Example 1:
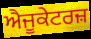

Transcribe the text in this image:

ਐਜੂਕੇਟਰਜ਼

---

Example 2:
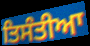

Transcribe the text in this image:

ਤਿਸੰਤੀਆ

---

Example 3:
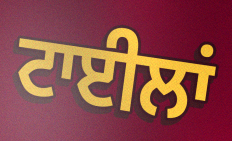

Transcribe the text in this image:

ਟਾਈਲਾਂ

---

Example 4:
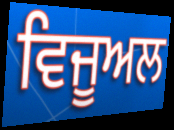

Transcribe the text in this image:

ਵਿਜੂਅਲ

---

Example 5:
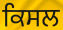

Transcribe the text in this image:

ਕਿਸਲ